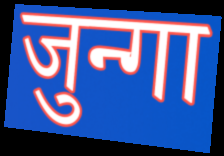
जुन्गा